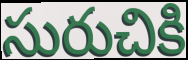
సురుచికి